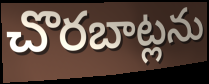
చొరబాట్లను